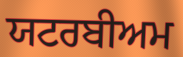
ਯਟਰਬੀਅਮ